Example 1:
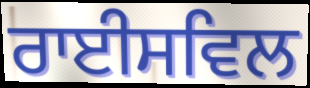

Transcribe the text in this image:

ਰਾਈਸਵਿਲ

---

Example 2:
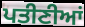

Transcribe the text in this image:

ਪਤੀਣੀਆਂ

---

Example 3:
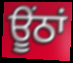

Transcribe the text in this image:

ਊਂਠਾਂ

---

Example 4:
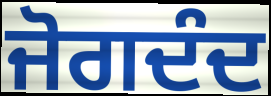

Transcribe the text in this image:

ਜੋਗਦੰਦ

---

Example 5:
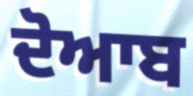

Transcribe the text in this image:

ਦੋਆਬ